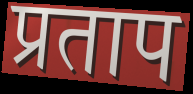
प्रताप